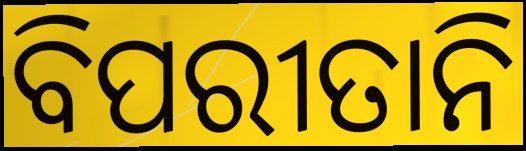
ବିପରୀତାନି